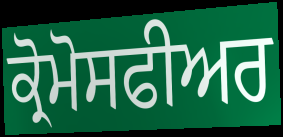
ਕ੍ਰੋਮੋਸਫੀਅਰ